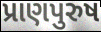
પ્રાણપુરુષ